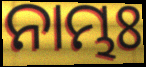
ନାମ୍ଭଃ